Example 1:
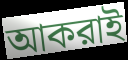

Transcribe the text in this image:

আকরাই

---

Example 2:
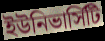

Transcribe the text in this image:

ইউনিভার্সিটি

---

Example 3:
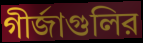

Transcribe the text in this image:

গীর্জাগুলির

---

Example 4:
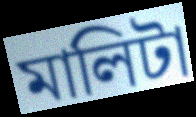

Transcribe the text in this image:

মালিটা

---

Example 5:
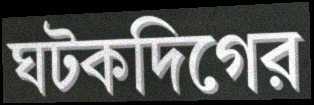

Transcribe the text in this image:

ঘটকদিগের